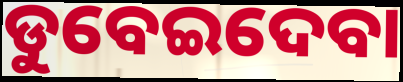
ଡୁବେଇଦେବା